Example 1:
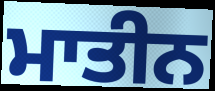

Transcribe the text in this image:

ਮਾਤੀਨ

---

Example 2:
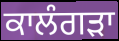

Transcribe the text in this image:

ਕਾਲੰਗੜਾ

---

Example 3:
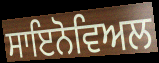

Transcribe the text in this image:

ਸਾਇਨੋਵਿਅਲ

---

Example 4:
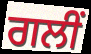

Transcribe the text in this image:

ਗਲੀਂ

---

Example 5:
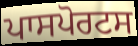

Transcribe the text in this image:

ਪਾਸਪੋਰਟਸ